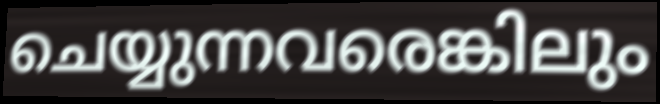
ചെയ്യുന്നവരെങ്കിലും